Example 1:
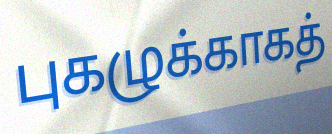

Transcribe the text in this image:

புகழுக்காகத்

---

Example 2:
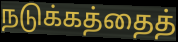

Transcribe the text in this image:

நடுக்கத்தைத்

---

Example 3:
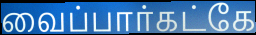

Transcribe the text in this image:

வைப்பார்கட்கே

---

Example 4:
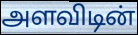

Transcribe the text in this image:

அளவிடின்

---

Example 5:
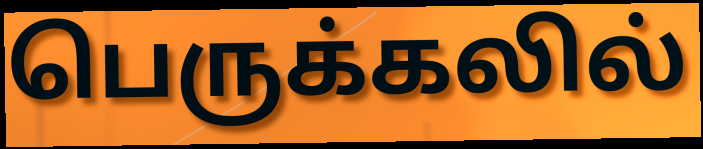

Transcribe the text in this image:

பெருக்கலில்